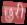
छुरी